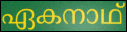
ഏകനാഥ്